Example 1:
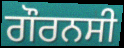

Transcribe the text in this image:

ਗੌਰਨਸੀ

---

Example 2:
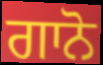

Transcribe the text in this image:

ਗਾਨੋ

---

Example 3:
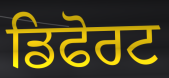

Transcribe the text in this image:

ਡਿਫੋਰਟ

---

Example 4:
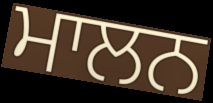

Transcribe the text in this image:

ਮਾਲਨ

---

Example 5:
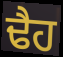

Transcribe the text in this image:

ਢੈਹ